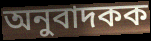
অনুবাদকক